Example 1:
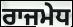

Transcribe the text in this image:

ਰਾਜਮੇਧ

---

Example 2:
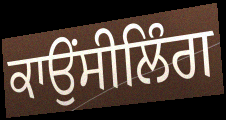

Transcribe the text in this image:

ਕਾਉਂਸੀਲਿੰਗ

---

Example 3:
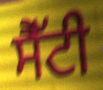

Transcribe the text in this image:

ਸੈੱਟੀ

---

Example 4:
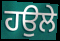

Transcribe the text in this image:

ਹਉਲੇ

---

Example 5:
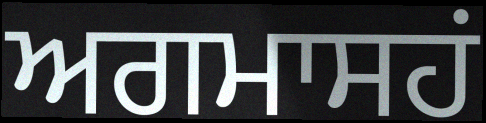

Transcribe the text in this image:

ਅਗਮਾਸਹਂ